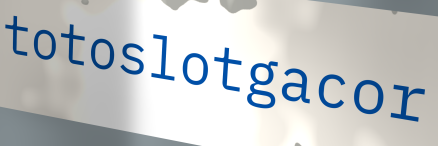
totoslotgacor